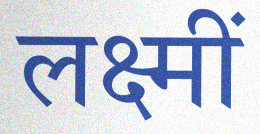
लक्ष्मीं